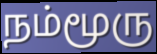
நம்மூரு